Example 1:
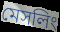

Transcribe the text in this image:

মেসলিং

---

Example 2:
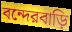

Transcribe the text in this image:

বন্দেরবাড়ি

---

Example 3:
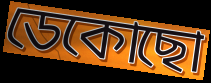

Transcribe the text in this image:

ডেকোছো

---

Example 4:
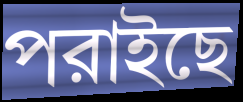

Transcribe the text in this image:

পরাইছে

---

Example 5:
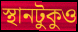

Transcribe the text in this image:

স্থানটুকুও